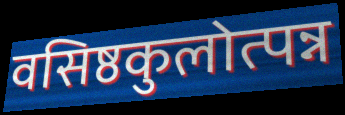
वसिष्ठकुलोत्पन्न